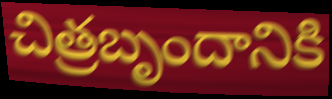
చిత్రబృందానికి